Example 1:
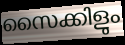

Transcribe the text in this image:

സൈക്കിളും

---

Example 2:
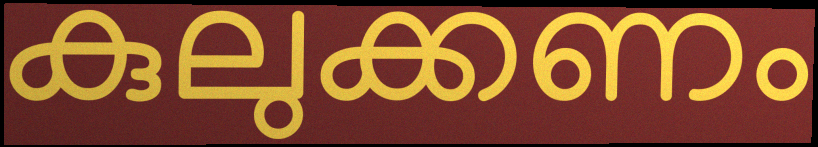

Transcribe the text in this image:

കുലുക്കണം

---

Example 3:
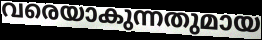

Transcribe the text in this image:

വരെയാകുന്നതുമായ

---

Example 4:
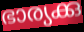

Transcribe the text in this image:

ഭാര്യക്കു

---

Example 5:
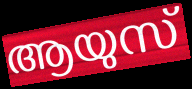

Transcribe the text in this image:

ആയുസ്